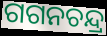
ଗଗନଚନ୍ଦ୍ର